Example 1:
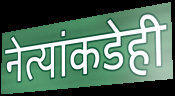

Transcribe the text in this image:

नेत्यांकडेही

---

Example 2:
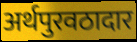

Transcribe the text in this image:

अर्थपुरवठादार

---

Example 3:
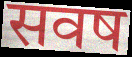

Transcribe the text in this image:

सवष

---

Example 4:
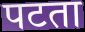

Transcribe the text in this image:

पटता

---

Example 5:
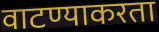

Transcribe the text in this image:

वाटण्याकरता